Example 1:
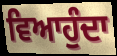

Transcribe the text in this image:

ਵਿਆਹੁੰਦਾ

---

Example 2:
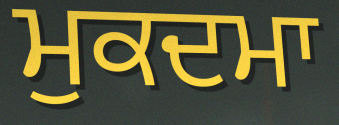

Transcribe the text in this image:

ਮੁਕਦਮਾ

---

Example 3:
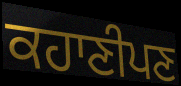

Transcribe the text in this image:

ਕਹਾਣੀਪਣ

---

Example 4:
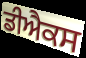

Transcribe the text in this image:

ਡੀਐਕਸ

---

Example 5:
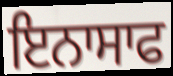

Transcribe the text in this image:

ਇਨਾਸਾਫ